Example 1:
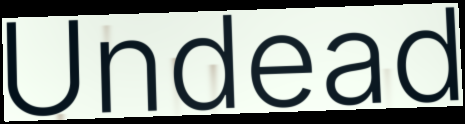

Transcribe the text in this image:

Undead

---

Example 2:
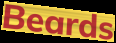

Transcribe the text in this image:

Beards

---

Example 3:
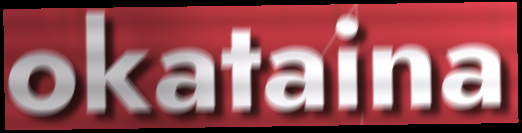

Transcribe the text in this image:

okataina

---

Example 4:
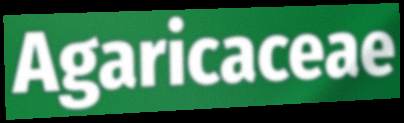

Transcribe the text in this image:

Agaricaceae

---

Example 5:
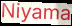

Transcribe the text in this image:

Niyama